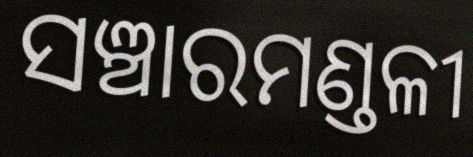
ସଞ୍ଚାରମଣ୍ଡଳୀ